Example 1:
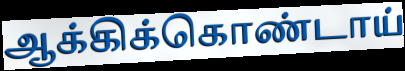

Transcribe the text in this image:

ஆக்கிக்கொண்டாய்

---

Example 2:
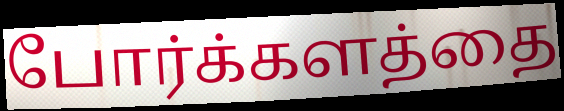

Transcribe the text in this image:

போர்க்களத்தை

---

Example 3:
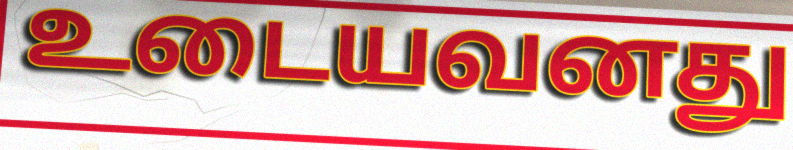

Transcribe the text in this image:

உடையவனது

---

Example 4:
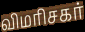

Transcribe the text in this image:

விமரிசகர்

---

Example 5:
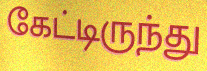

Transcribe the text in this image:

கேட்டிருந்து